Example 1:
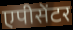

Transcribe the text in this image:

एपीसेंटर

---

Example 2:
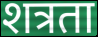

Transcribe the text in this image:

शत्रता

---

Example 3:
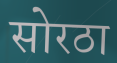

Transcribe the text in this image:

सोरठा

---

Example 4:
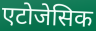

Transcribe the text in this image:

एटोजेसिक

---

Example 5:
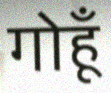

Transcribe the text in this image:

गोहूँ